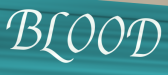
BLOOD